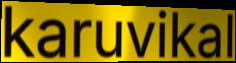
karuvikal